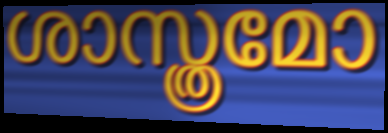
ശാസ്ത്രമോ